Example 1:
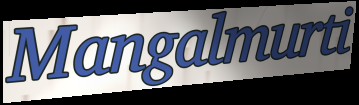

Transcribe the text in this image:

Mangalmurti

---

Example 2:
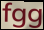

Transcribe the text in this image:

fgg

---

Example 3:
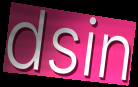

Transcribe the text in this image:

dsin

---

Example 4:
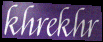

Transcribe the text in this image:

khrekhr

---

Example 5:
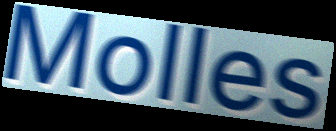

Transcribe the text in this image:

Molles